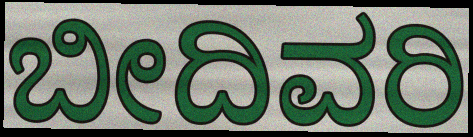
ಬೀದಿವರಿ